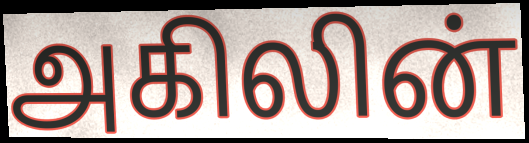
அகிலின்